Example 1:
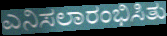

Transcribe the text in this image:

ಎನಿಸಲಾರಂಭಿಸಿತು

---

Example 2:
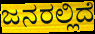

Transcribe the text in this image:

ಜನರಲ್ಲಿದೆ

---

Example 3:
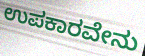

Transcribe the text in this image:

ಉಪಕಾರವೇನು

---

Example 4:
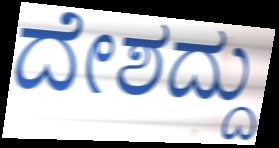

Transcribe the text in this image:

ದೇಶದ್ದು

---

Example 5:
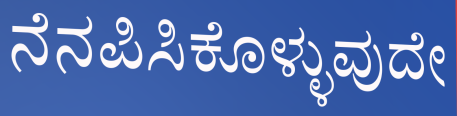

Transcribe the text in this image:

ನೆನಪಿಸಿಕೊಳ್ಳುವುದೇ